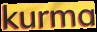
kurma